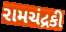
રામચંદ્રકી